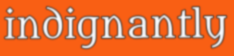
indignantly